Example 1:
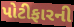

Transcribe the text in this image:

પોટીફારની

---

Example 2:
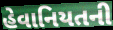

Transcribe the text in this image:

હેવાનિયતની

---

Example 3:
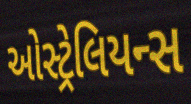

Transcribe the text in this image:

ઓસ્ટ્રેલિયન્સ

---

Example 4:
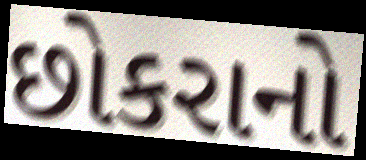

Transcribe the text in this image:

છોકરાનો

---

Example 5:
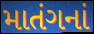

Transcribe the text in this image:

માતંગનાં